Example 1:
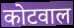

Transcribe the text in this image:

कोटवाल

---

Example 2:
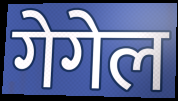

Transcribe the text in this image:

गेगेल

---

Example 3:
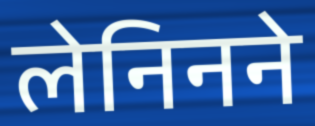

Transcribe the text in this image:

लेनिनने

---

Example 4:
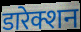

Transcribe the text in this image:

डारेक्शन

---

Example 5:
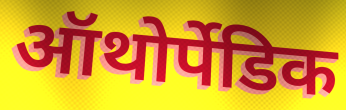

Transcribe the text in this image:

ऑथोर्पेडिक